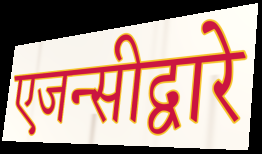
एजन्सीद्वारे